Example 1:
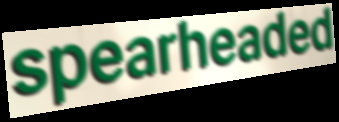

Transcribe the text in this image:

spearheaded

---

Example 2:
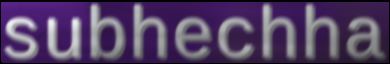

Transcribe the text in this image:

subhechha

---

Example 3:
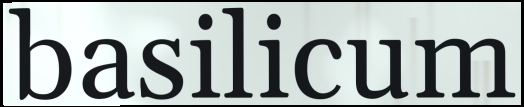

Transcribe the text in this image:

basilicum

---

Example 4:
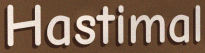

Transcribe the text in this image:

Hastimal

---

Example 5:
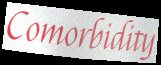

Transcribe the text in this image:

Comorbidity